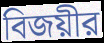
বিজয়ীর